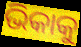
ଭିକାକୁ